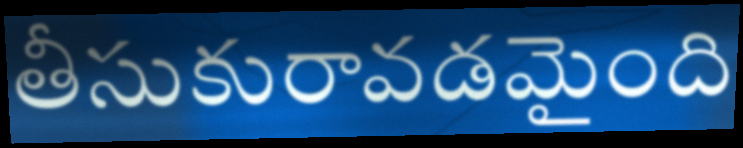
తీసుకురావడమైంది